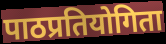
पाठप्रतियोगिता